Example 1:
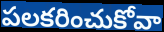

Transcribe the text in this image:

పలకరించుకోవా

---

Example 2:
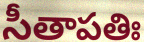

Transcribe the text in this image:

సీతాపతిః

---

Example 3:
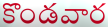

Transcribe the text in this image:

కొండవార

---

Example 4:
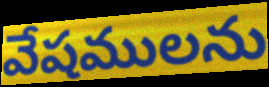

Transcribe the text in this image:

వేషములను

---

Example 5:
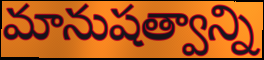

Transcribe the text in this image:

మానుషత్వాన్ని